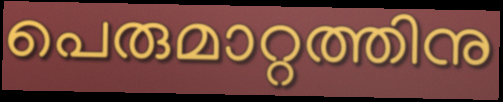
പെരുമാറ്റത്തിനു